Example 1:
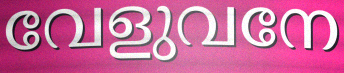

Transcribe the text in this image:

വേളുവനേ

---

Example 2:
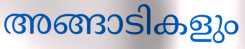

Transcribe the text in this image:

അങ്ങാടികളും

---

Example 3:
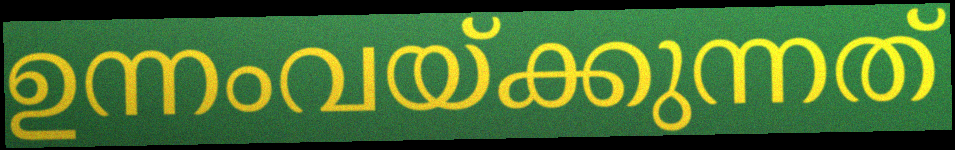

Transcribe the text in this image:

ഉന്നംവയ്ക്കുന്നത്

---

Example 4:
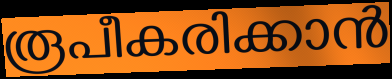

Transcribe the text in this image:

രൂപീകരിക്കാൻ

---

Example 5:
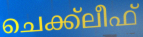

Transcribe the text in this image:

ചെക്ക്ലീഫ്